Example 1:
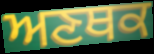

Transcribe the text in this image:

ਅਣਥਕ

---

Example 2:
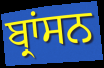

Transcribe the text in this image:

ਬ੍ਰਾਂਸਨ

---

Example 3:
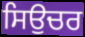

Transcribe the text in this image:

ਸਿਉਚਰ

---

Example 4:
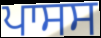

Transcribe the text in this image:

ਪਾਸਸ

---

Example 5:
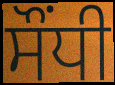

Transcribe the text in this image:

ਸੌਂਧੀ